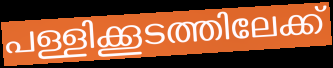
പള്ളിക്കൂടത്തിലേക്ക്